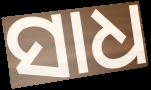
ସାଧ